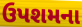
ઉપશમના